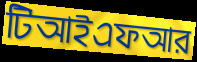
টিআইএফআর